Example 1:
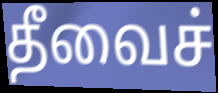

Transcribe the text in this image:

தீவைச்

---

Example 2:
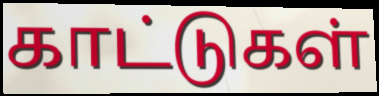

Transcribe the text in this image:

காட்டுகள்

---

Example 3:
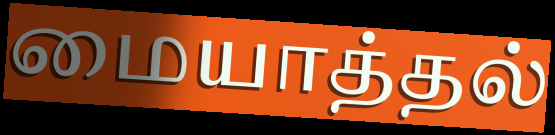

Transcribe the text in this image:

மையாத்தல்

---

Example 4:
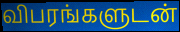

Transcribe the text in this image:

விபரங்களுடன்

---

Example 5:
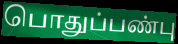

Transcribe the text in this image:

பொதுப்பண்பு